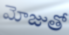
మోజుతో